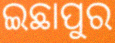
ଇଛାପୁର